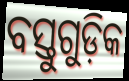
ବସ୍ତୁଗୁଡ଼ିକ